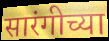
सारंगीच्या